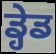
ਡ੍ਹੇਡ